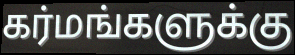
கர்மங்களுக்கு